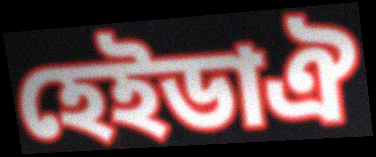
হেইডাঐ